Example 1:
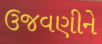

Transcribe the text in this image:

ઉજવણીને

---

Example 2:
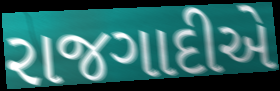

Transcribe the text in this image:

રાજગાદીએ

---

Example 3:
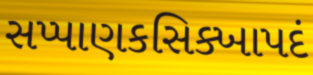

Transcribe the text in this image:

સપ્પાણકસિક્ખાપદં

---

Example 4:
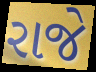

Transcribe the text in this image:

રાજે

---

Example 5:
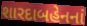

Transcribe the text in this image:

શારદાબહેનનાં